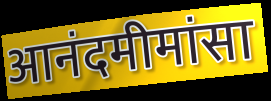
आनंदमीमांसा